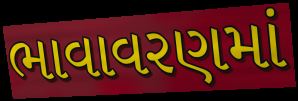
ભાવાવરણમાં